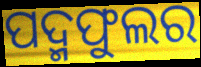
ପଦ୍ମଫୁଲର